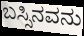
ಬಸ್ಸಿನವನು